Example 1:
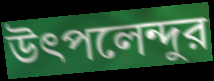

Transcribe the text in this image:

উৎপলেন্দুর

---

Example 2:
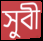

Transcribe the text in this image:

সুবী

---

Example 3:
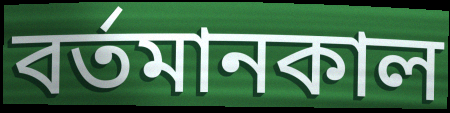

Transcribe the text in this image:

বর্তমানকাল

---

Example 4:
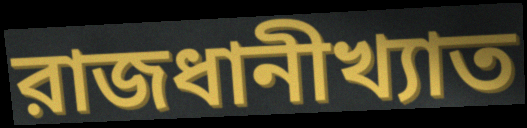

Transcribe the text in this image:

রাজধানীখ্যাত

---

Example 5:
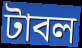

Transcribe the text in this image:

টাবল